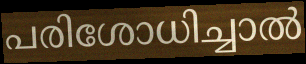
പരിശോധിച്ചാൽ